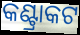
କଣ୍ଟ୍ରାକଟ